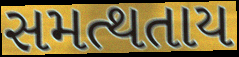
સમત્થતાય